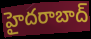
హైదరాబాద్